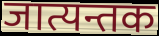
जात्यन्तक